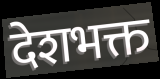
देशभक्त